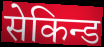
सेकिन्ड